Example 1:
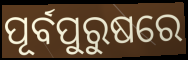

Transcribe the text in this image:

ପୂର୍ବପୁରୁଷରେ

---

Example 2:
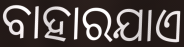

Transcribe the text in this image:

ବାହାରଯାଏ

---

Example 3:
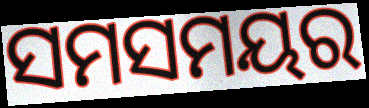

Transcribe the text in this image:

ସମସମୟର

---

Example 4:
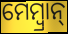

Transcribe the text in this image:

ମେମ୍ବ୍ରାନ୍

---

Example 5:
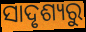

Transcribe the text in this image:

ସାଦୃଶ୍ୟରୁ